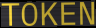
TOKEN